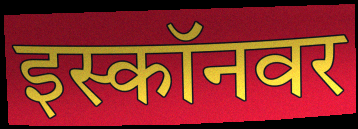
इस्कॉनवर